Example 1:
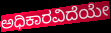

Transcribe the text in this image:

ಅಧಿಕಾರವಿದೆಯೇ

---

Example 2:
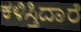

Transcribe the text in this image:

ಕಳಿಸ್ತಿದಾರೆ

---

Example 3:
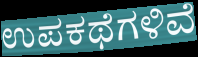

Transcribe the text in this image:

ಉಪಕಥೆಗಳಿವೆ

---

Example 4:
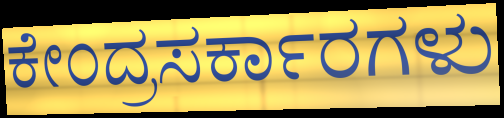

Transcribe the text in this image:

ಕೇಂದ್ರಸರ್ಕಾರಗಳು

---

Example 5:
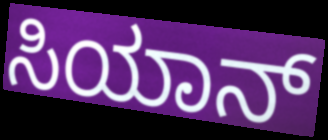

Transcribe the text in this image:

ಸಿಯಾನ್